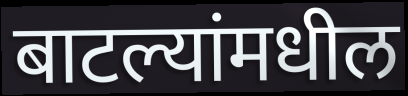
बाटल्यांमधील